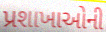
પ્રશાખાઓની